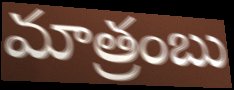
మాత్రంబు